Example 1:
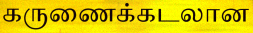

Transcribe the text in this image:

கருணைக்கடலான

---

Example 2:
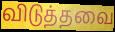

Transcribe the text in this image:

விடுத்தவை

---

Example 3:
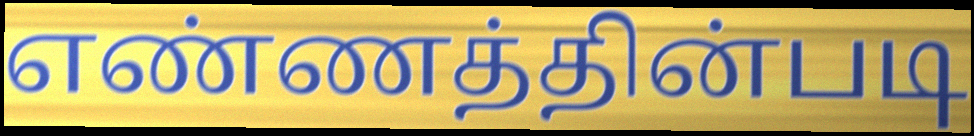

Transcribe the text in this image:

எண்ணத்தின்படி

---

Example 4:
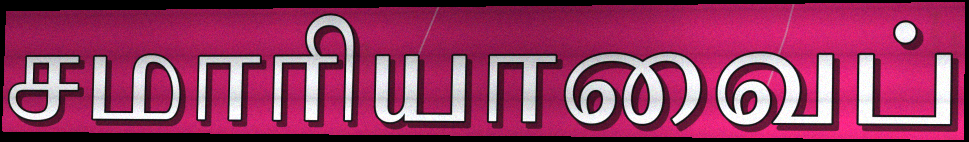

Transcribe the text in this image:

சமாரியாவைப்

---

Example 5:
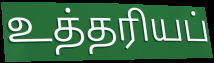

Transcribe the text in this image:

உத்தரியப்